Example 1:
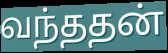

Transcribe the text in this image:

வந்ததன்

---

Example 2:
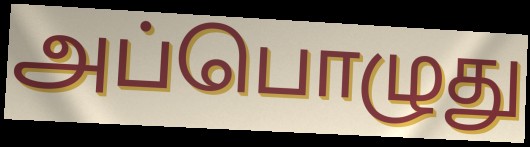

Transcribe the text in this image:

அப்பொழுது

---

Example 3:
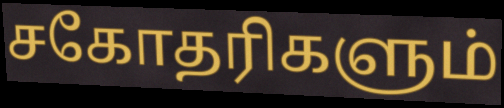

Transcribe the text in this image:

சகோதரிகளும்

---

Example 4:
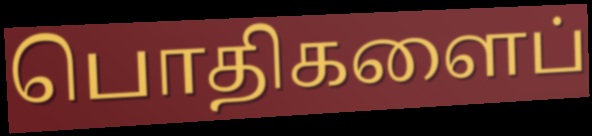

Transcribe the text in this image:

பொதிகளைப்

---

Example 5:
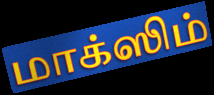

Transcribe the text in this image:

மாக்ஸிம்